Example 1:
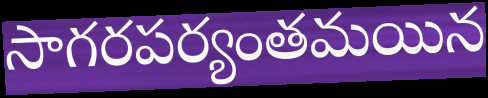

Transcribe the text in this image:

సాగరపర్యంతమయిన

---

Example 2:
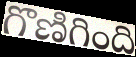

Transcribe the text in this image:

గొణిగింది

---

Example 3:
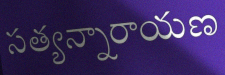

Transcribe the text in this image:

సత్యన్నారాయణ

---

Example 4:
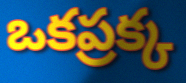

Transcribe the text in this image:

ఒకప్రక్క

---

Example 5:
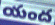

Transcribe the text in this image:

యంద